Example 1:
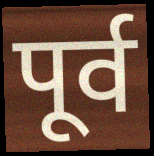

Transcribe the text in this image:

पूर्व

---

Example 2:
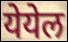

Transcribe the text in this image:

येयेल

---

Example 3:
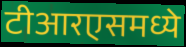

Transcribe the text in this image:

टीआरएसमध्ये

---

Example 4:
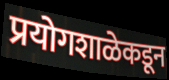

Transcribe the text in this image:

प्रयोगशाळेकडून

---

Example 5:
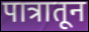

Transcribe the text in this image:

पात्रातून